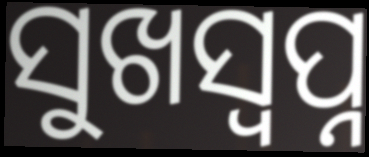
ସୁଖସ୍ୱପ୍ନ